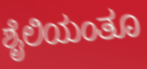
ಶೈಲಿಯಂತೂ